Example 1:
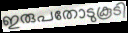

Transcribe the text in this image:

ഇരുപതോടുകൂടി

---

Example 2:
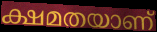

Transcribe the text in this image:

ക്ഷമതയാണ്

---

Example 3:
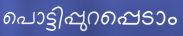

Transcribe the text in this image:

പൊട്ടിപ്പുറപ്പെടാം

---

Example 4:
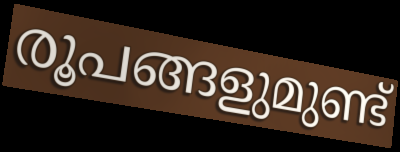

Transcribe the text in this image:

രൂപങ്ങളുമുണ്ട്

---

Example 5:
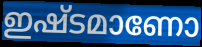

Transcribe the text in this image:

ഇഷ്ടമാണോ